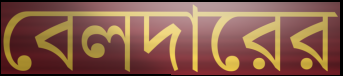
বেলদারের